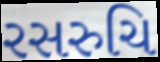
રસરુચિ